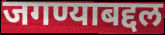
जगण्याबद्दल